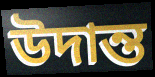
উদান্ত